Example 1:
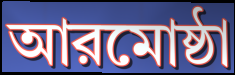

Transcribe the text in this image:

আরমোষ্ঠা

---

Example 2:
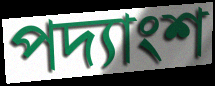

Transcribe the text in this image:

পদ্যাংশ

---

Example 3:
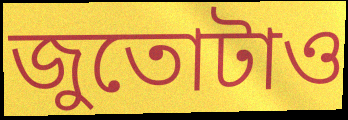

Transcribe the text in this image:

জুতোটাও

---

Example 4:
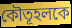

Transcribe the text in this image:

কৌতূহলকে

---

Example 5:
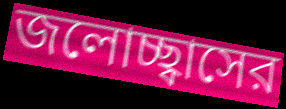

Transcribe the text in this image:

জলোচ্ছ্বাসের